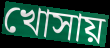
খোসায়